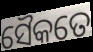
ସୈକତେ